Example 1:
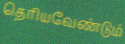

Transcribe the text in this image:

தெரியவேண்டும்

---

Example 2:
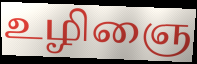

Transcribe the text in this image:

உழிஞை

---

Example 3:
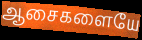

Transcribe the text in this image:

ஆசைகளையே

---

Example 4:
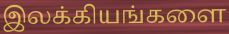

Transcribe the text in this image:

இலக்கியங்களை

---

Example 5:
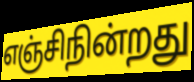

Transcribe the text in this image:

எஞ்சிநின்றது